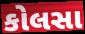
કોલસા